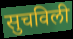
सुचविली